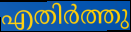
എതിർത്തു